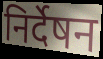
निर्देषन